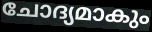
ചോദ്യമാകും